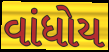
વાંધોય